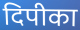
दिपीका